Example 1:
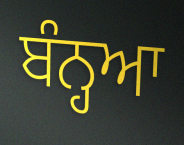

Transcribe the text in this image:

ਬੰਨ੍ਹਆ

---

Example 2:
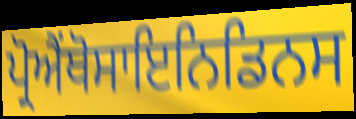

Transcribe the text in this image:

ਪ੍ਰੋਐਂਥੋਸਾਇਨਿਡਿਨਸ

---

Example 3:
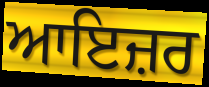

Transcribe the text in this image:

ਆਇਜ਼ਰ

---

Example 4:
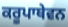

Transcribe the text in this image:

ਕਰੂਪਾਥੇਵਨ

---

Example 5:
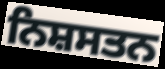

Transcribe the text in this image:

ਨਿਸ਼ਸਤਨ